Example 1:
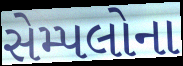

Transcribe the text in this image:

સેમ્પલોના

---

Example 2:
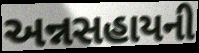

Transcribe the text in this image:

અન્નસહાયની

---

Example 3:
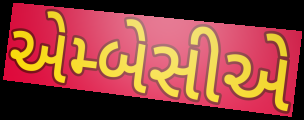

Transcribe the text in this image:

એમ્બેસીએ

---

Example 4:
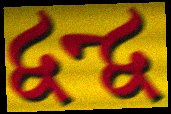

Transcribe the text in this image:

દ્વન્દ્વ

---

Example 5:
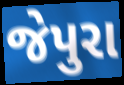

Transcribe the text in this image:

જેપુરા